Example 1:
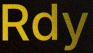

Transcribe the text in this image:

Rdy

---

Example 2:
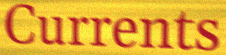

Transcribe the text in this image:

Currents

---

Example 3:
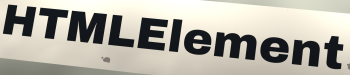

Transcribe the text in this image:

HTMLElement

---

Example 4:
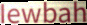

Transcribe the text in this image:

Iewbah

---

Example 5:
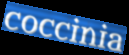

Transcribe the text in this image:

coccinia